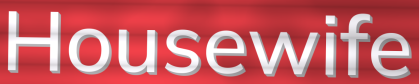
Housewife